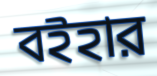
বইহার